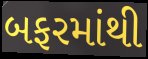
બફરમાંથી